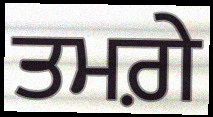
ਤਮਗ਼ੇ